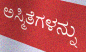
ಅಸ್ಮಿತೆಗಳನ್ನು